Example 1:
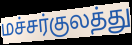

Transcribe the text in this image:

மச்சர்குலத்து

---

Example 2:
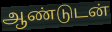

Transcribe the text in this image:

ஆண்டுடன்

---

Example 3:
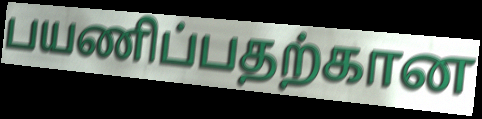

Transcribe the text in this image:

பயணிப்பதற்கான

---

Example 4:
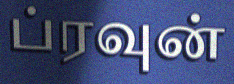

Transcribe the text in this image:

ப்ரவுன்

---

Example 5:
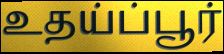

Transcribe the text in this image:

உதய்ப்பூர்